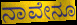
ನಾವೇನೂ